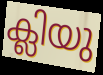
ക്ലിയു